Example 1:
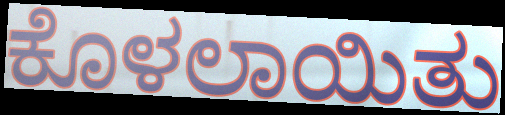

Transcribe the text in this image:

ಕೊಳಲಾಯಿತು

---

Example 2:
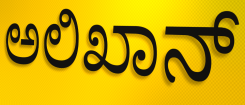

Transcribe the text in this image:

ಅಲಿಖಾನ್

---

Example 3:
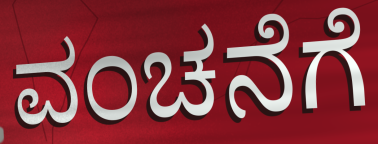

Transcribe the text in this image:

ವಂಚನೆಗೆ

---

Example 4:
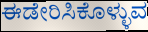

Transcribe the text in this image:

ಈಡೇರಿಸಿಕೊಳ್ಳುವ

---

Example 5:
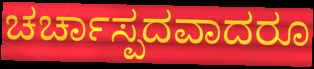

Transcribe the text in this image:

ಚರ್ಚಾಸ್ಪದವಾದರೂ